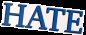
HATE